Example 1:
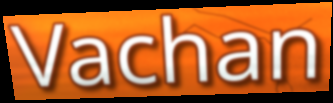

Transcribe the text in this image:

Vachan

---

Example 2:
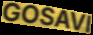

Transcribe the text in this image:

GOSAVI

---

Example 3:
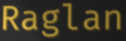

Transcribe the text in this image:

Raglan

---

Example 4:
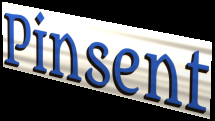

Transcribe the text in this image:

Pinsent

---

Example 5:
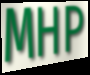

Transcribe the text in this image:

MHP